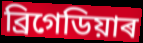
ব্ৰিগেডিয়াৰ